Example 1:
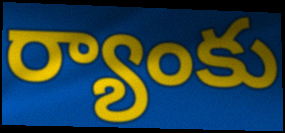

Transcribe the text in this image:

ర్యాంకు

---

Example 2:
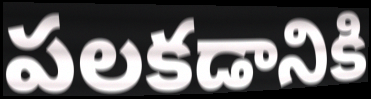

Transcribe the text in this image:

పలకడానికి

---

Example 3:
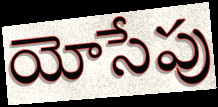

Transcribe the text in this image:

యోసేపు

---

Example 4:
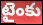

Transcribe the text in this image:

టైంకు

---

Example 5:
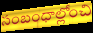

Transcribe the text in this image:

సంబంధాల్లోంచి